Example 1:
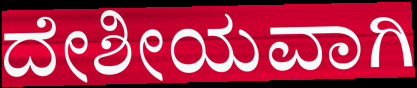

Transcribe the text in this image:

ದೇಶೀಯವಾಗಿ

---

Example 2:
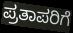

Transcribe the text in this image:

ಪ್ರತಾಪರಿಗೆ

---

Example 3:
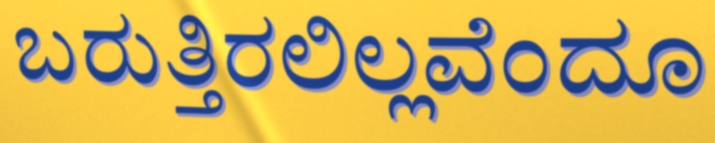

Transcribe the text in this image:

ಬರುತ್ತಿರಲಿಲ್ಲವೆಂದೂ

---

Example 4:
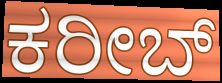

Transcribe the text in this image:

ಕರೀಬ್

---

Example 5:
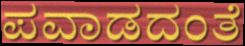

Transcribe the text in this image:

ಪವಾಡದಂತೆ